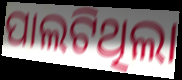
ପାଲଟିଥିଲା